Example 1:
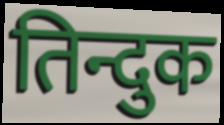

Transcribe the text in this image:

तिन्दुक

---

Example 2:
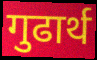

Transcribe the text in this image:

गुढार्थ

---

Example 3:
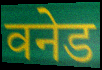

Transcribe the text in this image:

वनेड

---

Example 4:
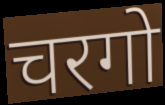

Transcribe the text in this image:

चरगो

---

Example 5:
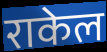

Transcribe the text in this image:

राकेल